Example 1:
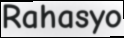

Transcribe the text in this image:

Rahasyo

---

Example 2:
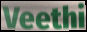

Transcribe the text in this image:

Veethi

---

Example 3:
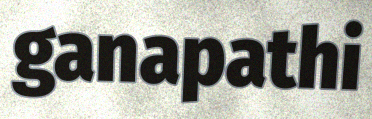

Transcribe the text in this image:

ganapathi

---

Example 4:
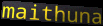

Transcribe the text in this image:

maithuna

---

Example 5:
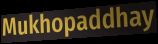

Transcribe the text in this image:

Mukhopaddhay